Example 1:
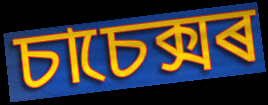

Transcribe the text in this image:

চাচেক্সৰ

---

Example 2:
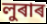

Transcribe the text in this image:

লুৰাৰ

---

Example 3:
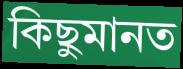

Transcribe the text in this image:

কিছুমানত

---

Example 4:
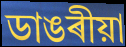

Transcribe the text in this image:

ডাঙৰীয়া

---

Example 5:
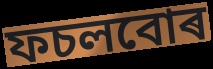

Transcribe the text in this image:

ফচলবোৰ